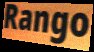
Rango